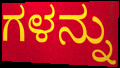
ಗಳನ್ನು